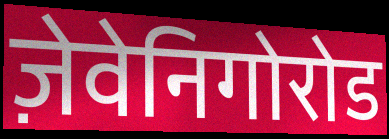
ज़ेवेनिगोरोड